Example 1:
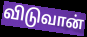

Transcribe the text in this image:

விடுவான்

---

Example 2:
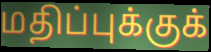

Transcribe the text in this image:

மதிப்புக்குக்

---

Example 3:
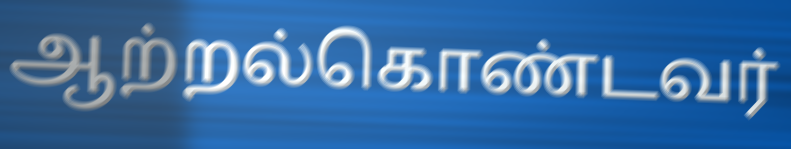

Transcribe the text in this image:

ஆற்றல்கொண்டவர்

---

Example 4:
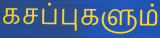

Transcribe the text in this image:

கசப்புகளும்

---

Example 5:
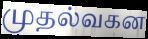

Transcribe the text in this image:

முதல்வகன